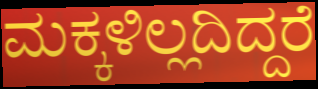
ಮಕ್ಕಳಿಲ್ಲದಿದ್ದರೆ